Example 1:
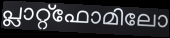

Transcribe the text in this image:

പ്ലാറ്റ്ഫോമിലോ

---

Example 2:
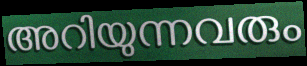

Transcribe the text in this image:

അറിയുന്നവരും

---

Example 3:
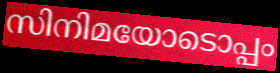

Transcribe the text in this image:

സിനിമയോടൊപ്പം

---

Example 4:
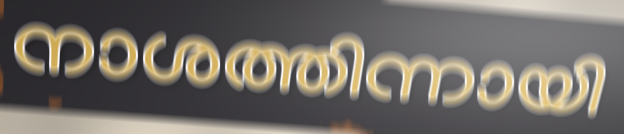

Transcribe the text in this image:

നാശത്തിന്നായി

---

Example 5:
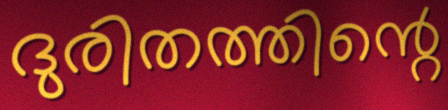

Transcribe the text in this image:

ദുരിതത്തിന്റെ